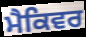
ਮੈਕਿਵਰ